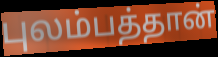
புலம்பத்தான்